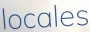
locales